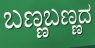
ಬಣ್ಣಬಣ್ಣದ